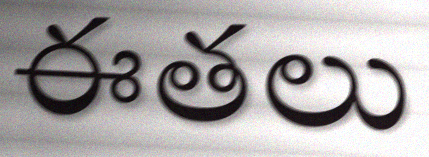
ఈతలు